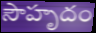
సౌహృదం